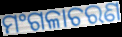
ମଂଗଳାଚରଣ